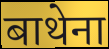
बाथेना